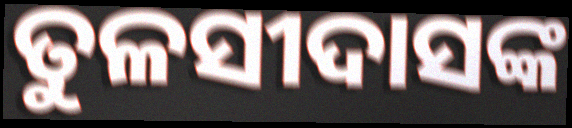
ତୁଳସୀଦାସଙ୍କ